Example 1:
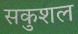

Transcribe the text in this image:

सकुशल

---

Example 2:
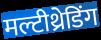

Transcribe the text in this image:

मल्टीथ्रेडिंग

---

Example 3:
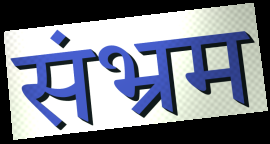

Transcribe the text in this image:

संभ्रम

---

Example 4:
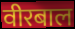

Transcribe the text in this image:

वीरबाल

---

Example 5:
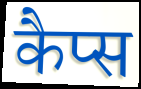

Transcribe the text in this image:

कैप्स